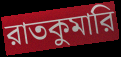
রাতকুমারি